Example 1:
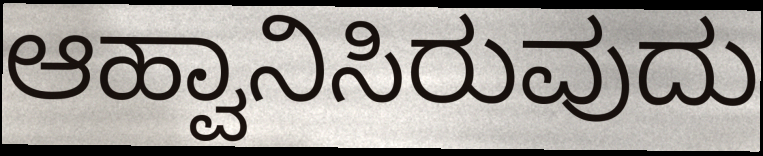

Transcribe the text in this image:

ಆಹ್ವಾನಿಸಿರುವುದು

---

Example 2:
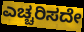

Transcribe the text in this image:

ಎಚ್ಚರಿಸದೇ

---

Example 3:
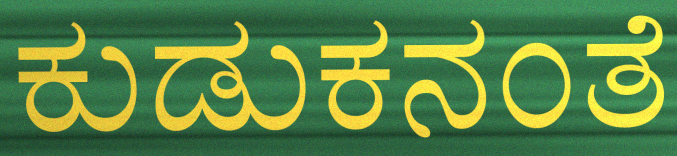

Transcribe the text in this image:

ಕುಡುಕನಂತೆ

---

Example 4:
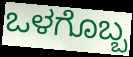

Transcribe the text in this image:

ಒಳಗೊಬ್ಬ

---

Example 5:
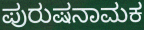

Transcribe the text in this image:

ಪುರುಷನಾಮಕ